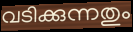
വടിക്കുന്നതും